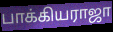
பாக்கியராஜா